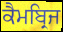
ਕੈਮਬ੍ਰਿਜ